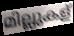
മില്ലുകള്